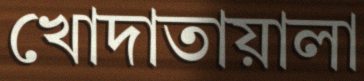
খোদাতায়ালা